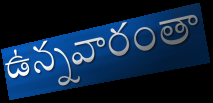
ఉన్నవారంతా